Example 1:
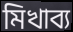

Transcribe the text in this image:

মিখাব্য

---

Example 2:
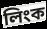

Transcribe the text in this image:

লিংক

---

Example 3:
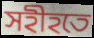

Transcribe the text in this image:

সহীহতে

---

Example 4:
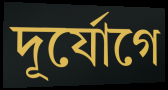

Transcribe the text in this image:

দূর্যোগে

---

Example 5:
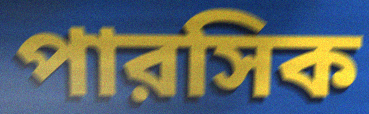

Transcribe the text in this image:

পারসিক